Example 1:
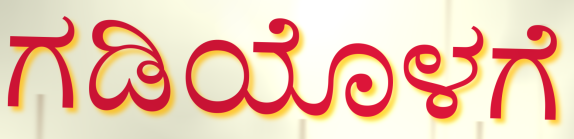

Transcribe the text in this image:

ಗಡಿಯೊಳಗೆ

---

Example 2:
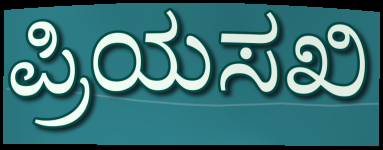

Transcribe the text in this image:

ಪ್ರಿಯಸಖಿ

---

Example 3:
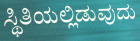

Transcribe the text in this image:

ಸ್ಥಿತಿಯಲ್ಲಿಡುವುದು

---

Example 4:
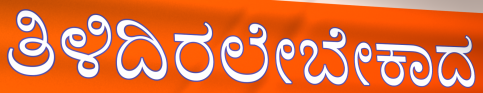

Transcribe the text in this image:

ತಿಳಿದಿರಲೇಬೇಕಾದ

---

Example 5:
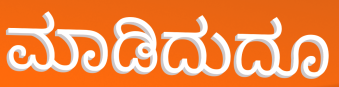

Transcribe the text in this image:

ಮಾಡಿದುದೂ